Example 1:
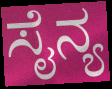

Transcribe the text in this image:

ಸೈನ್ಯ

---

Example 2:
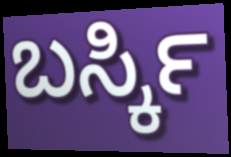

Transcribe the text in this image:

ಬರ್ಸ್ಕಿ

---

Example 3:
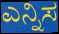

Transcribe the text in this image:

ಎನ್ನಿಸ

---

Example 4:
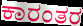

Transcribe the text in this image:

ಕಾರಂತರ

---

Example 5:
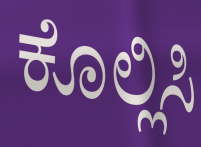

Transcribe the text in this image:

ಕೊಲ್ಲಿಸಿ